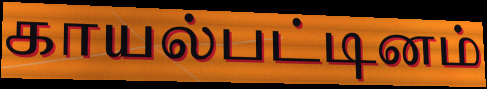
காயல்பட்டினம்